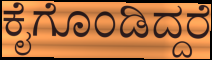
ಕೈಗೊಂಡಿದ್ದರೆ